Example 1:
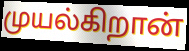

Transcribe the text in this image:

முயல்கிறான்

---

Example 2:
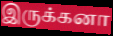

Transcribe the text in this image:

இருக்கனா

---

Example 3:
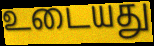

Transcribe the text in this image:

உடையது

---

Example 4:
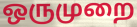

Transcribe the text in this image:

ஒருமுறை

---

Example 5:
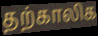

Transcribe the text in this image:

தற்காலிக